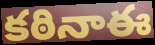
కఠినాఈ